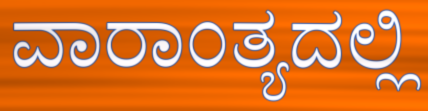
ವಾರಾಂತ್ಯದಲ್ಲಿ